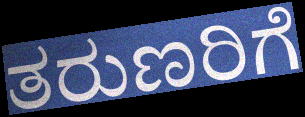
ತರುಣರಿಗೆ